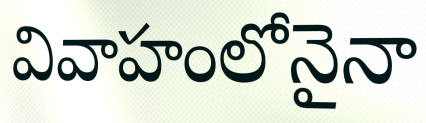
వివాహంలోనైనా